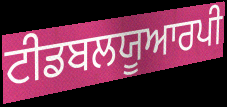
ਟੀਡਬਲਯੂਆਰਪੀ